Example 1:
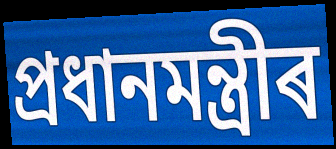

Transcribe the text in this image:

প্ৰধানমন্ত্ৰীৰ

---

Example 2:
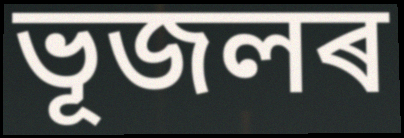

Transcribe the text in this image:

ভূজলৰ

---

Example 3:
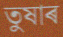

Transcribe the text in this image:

তুষাৰ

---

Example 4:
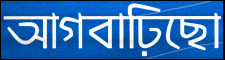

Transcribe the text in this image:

আগবাঢ়িছো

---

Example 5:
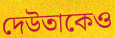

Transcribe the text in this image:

দেউতাকেও